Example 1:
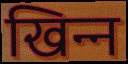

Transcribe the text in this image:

खिन्‍न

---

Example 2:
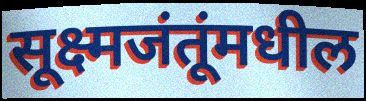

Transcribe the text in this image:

सूक्ष्मजंतूंमधील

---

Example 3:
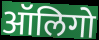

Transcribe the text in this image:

ऑलिगो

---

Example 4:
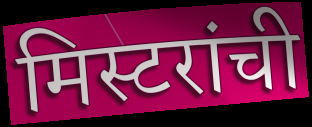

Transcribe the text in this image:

मिस्टरांची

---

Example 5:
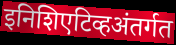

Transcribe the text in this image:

इनिशिएटिव्हअंतर्गत